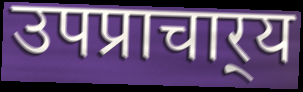
उपप्राचार्य